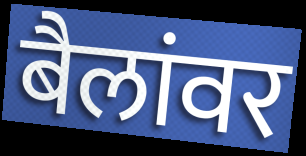
बैलांवर